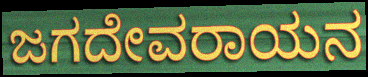
ಜಗದೇವರಾಯನ